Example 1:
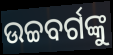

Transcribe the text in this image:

ଉଚ୍ଚବର୍ଗଙ୍କୁ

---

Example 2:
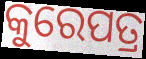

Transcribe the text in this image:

କୁରେପତ୍ର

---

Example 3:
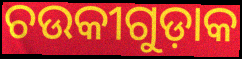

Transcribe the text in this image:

ଚଉକୀଗୁଡ଼ାକ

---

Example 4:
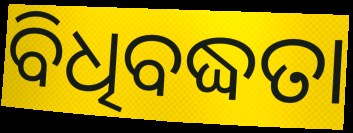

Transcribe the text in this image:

ବିଧିବଦ୍ଧତା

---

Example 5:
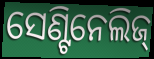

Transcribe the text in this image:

ସେଣ୍ଟିନେଲିଜ୍